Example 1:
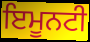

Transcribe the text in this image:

ਇਮੂਨਟੀ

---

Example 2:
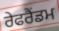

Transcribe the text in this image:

ਰੇਫਰੈਂਡਮ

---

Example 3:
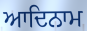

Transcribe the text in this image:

ਆਦਿਨਾਮ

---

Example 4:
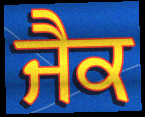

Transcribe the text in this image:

ਜੈਕ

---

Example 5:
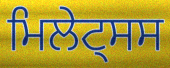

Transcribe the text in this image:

ਮਿਲੇਟ੍ਸਸ